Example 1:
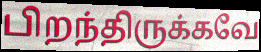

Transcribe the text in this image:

பிறந்திருக்கவே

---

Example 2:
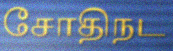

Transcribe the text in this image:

சோதிநட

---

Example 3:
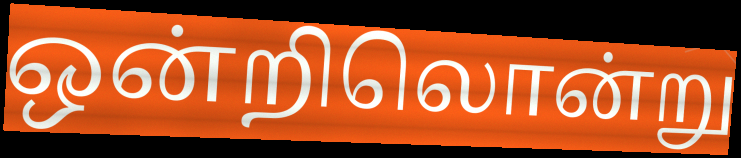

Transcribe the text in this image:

ஒன்றிலொன்று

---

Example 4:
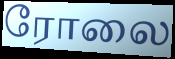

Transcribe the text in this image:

ரோலை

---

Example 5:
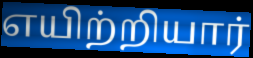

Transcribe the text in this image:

எயிற்றியார்